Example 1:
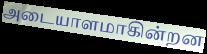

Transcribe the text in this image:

அடையாளமாகின்றன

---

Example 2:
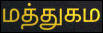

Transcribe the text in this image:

மத்துகம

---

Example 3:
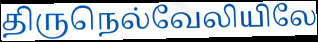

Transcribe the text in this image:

திருநெல்வேலியிலே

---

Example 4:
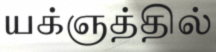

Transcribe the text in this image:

யக்ஞத்தில்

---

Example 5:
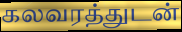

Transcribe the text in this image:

கலவரத்துடன்